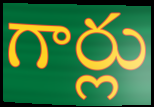
గార్లు